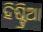
ହିଷ୍ଟ୍ରିଆ